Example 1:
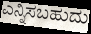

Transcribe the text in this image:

ಎನ್ನಿಸಬಹುದು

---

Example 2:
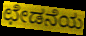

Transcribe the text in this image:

ಛೇಡನೆಯ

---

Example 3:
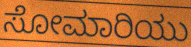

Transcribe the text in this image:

ಸೋಮಾರಿಯು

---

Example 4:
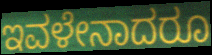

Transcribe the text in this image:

ಇವಳೇನಾದರೂ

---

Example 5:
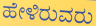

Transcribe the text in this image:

ಹೇಳಿರುವರು